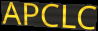
APCLC